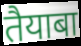
तैयाबा